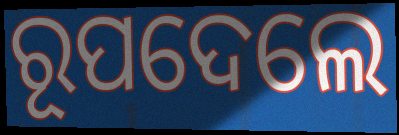
ରୂପଦେଲେ